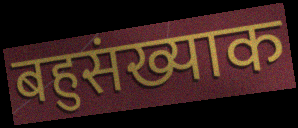
बहुसंख्याक